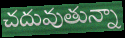
చదువుతున్నా